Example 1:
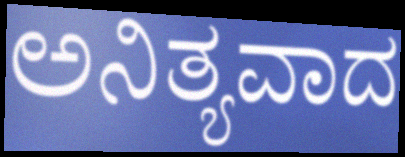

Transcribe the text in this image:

ಅನಿತ್ಯವಾದ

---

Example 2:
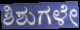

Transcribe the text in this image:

ಶಿಶುಗಳೇ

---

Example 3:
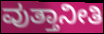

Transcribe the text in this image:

ವುತ್ತಾನೀತಿ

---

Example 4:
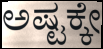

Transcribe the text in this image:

ಅಷ್ಟಕ್ಕೇ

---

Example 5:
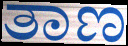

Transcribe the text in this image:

ತಾಣ